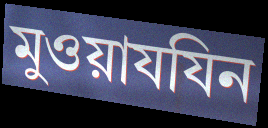
মুওয়াযযিন